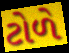
ટોળે